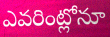
ఎవరింట్లోనూ